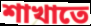
শাখাতে